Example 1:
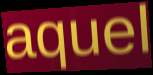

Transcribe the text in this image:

aquel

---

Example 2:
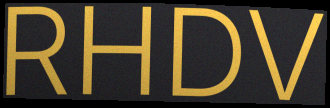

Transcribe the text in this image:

RHDV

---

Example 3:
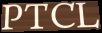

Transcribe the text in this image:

PTCL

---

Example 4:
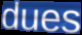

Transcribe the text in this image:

dues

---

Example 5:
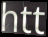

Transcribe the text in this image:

htt